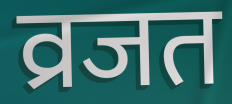
व्रजत